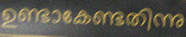
ഉണ്ടാകേണ്ടതിന്നു